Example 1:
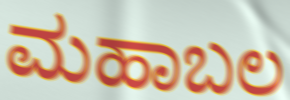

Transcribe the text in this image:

ಮಹಾಬಲ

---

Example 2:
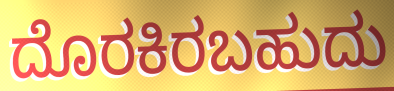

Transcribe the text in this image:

ದೊರಕಿರಬಹುದು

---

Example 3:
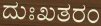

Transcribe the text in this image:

ದುಃಖತರಂ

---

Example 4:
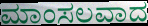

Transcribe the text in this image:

ಮಾಂಸಲವಾದ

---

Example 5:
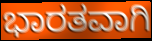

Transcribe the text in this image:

ಭಾರತವಾಗಿ